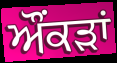
ਔਂਕੜਾਂ